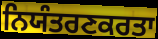
ਨਿਯੰਤਰਣਕਰਤਾ